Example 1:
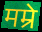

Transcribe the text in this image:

मम्रे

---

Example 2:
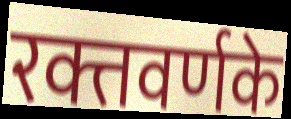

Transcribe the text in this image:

रक्तवर्णके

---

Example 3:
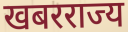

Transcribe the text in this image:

खबरराज्य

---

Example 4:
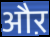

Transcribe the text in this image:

औऱ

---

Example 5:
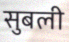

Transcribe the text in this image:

सुबली